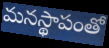
మనస్థాపంతో